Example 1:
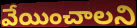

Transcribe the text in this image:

వేయించాలని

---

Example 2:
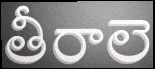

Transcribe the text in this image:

తీరాలె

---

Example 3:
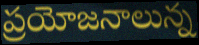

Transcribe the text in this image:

ప్రయోజనాలున్న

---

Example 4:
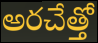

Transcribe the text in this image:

అరచేత్తో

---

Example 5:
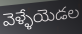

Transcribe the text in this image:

వెళ్ళేయెడల